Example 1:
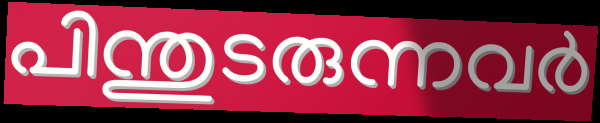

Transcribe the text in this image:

പിന്തുടരുന്നവർ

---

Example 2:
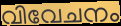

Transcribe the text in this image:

വിവേചനം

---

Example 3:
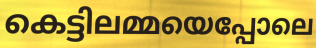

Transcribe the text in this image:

കെട്ടിലമ്മയെപ്പോലെ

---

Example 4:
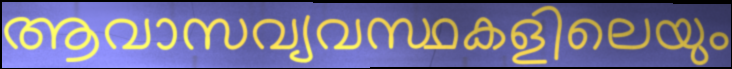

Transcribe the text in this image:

ആവാസവ്യവസ്ഥകളിലെയും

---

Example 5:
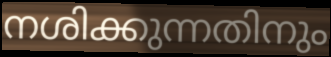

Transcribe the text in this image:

നശിക്കുന്നതിനും